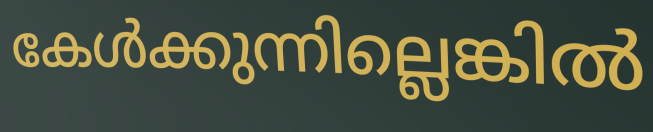
കേൾക്കുന്നില്ലെങ്കിൽ